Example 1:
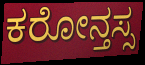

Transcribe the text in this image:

ಕರೋನ್ತಸ್ಸ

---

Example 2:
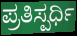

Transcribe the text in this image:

ಪ್ರತಿಸ್ಪರ್ಧಿ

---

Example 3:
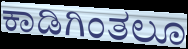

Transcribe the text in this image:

ಕಾಡಿಗಿಂತಲೂ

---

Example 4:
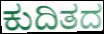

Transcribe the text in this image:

ಕುದಿತದ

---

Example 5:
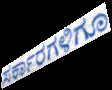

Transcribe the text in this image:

ಸರ್ಕಾರಗಳಿಗೂ